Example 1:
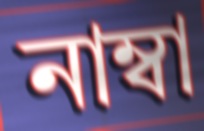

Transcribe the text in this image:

নাম্বা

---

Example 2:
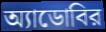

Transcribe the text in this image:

অ্যাডোবির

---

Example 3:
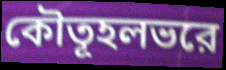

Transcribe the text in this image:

কৌতূহলভরে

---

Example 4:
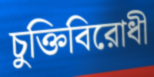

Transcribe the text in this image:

চুক্তিবিরোধী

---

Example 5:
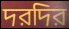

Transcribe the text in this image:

দরদির